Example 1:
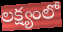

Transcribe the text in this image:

లక్ష్యంలో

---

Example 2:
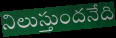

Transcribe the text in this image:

నిలుస్తుందనేది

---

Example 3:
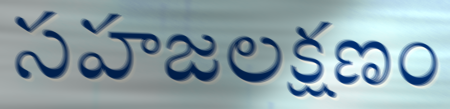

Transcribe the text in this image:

సహజలక్షణం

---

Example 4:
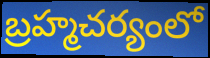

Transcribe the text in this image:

బ్రహ్మచర్యంలో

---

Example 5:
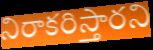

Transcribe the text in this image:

నిరాకరిస్తారని